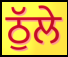
ਠੁੱਲੇ